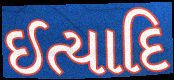
ઈત્યાદિ